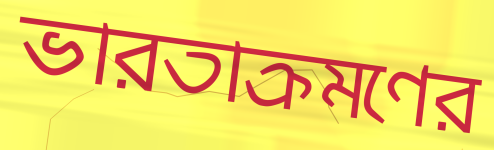
ভারতাক্রমণের